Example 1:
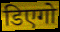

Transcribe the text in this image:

डिएगो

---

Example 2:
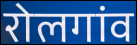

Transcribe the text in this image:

रोलगांव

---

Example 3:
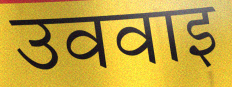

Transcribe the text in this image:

उववाइ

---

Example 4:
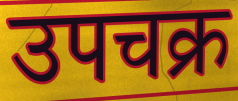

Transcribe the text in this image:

उपचक्र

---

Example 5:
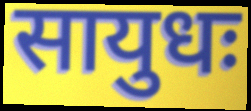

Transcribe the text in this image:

सायुधः